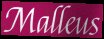
Malleus